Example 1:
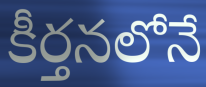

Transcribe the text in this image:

కీర్తనలోనే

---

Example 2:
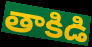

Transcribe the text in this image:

తాకిడి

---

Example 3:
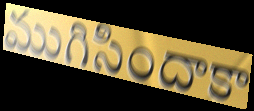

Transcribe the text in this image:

ముగిసిందాకా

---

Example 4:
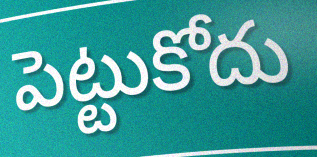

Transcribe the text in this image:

పెట్టుకోదు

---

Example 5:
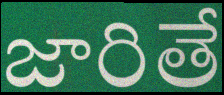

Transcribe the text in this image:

జారితే